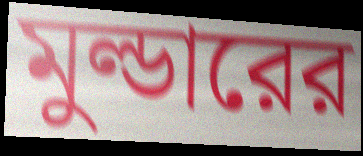
মুল্ডারের